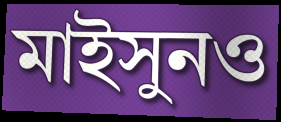
মাইসুনও